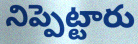
నిప్పెట్టారు